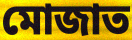
মোজাত